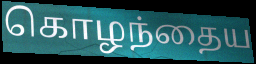
கொழந்தைய